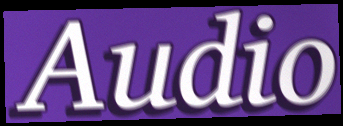
Audio